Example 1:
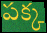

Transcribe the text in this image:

పక్క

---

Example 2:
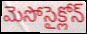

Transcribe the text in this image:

మెసోసైక్లోన్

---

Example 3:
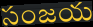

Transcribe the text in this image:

సంజయ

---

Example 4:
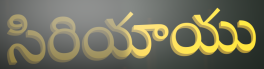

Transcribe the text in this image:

సిరియాయు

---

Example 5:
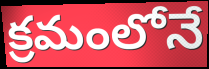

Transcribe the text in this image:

క్రమంలోనే